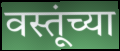
वस्तूंच्या